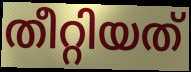
തീറ്റിയത്